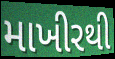
માખીરથી